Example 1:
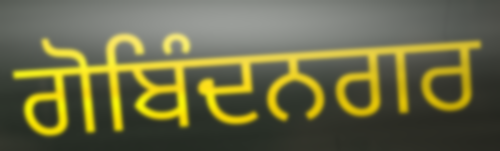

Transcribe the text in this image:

ਗੋਬਿੰਦਨਗਰ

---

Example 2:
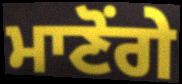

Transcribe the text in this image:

ਮਾਣੋਂਗੇ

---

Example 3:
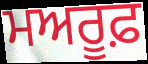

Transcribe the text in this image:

ਮਅਰੂਫ਼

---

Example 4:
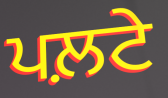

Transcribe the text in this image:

ਪਲ਼ਟੇ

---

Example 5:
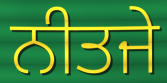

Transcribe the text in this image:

ਨੀਤਜੇ